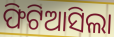
ଫିଟିଆସିଲା